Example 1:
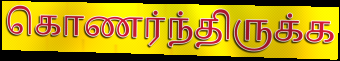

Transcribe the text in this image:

கொணர்ந்திருக்க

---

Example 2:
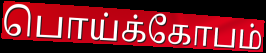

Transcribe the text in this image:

பொய்க்கோபம்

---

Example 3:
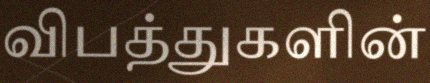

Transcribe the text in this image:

விபத்துகளின்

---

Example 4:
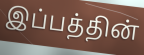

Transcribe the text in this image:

இப்பத்தின்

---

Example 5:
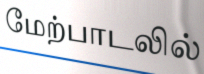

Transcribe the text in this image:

மேற்பாடலில்